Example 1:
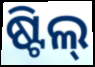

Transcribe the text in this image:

ଷ୍ଟିଲ୍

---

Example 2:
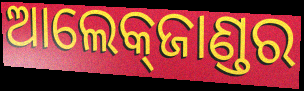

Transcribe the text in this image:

ଆଲେକ୍‌ଜାଣ୍ଡର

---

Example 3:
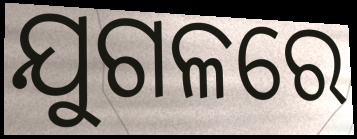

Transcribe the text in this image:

ଯୁଗଳରେ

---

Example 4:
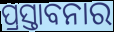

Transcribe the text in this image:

ପ୍ରସ୍ତାବନାର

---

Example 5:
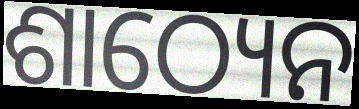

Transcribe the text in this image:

ଶାଠ୍ୟେନ